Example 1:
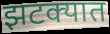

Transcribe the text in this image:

झटक्‍यात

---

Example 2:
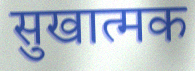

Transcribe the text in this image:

सुखात्मक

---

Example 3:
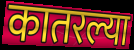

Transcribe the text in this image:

कातरल्या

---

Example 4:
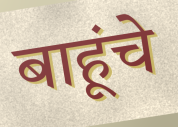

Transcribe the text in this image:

बाहूंचे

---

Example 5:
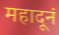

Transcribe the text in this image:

महादूनं